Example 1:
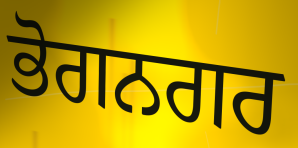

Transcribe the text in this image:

ਭੋਗਨਗਰ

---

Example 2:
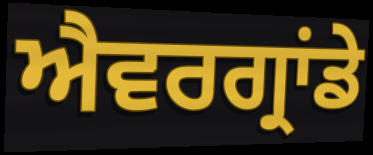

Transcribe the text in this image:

ਐਵਰਗ੍ਰਾਂਡੇ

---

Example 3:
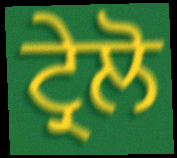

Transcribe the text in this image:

ਟ੍ਰੇਲੋ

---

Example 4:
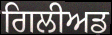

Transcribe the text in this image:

ਗਿਲੀਅਡ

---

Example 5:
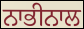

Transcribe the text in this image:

ਨਾਭੀਨਾਲ